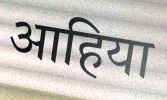
आहिया